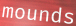
mounds